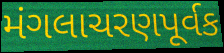
મંગલાચરણપૂર્વક